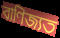
বাণিজ্যত